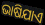
ଭାଷିଯାଏ